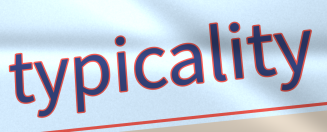
typicality